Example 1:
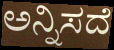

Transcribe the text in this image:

ಅನ್ನಿಸದೆ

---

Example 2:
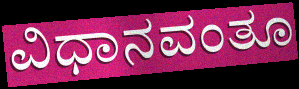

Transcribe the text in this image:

ವಿಧಾನವಂತೂ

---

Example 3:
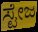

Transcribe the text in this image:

ಸ್ಟೇಜ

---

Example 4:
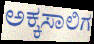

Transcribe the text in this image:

ಅಕ್ಕಸಾಲಿಗ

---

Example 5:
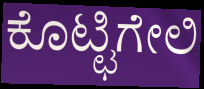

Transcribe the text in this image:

ಕೊಟ್ಟಿಗೇಲಿ